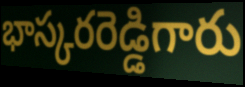
భాస్కరరెడ్డిగారు